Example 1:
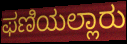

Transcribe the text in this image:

ಫಣಿಯಲ್ಲಾರು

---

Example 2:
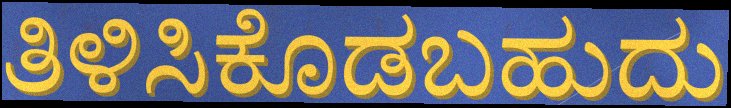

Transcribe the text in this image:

ತಿಳಿಸಿಕೊಡಬಹುದು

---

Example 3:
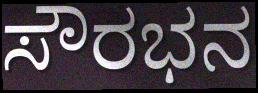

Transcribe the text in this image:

ಸೌರಭನ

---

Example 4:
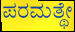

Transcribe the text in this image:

ಪರಮತ್ಥೇ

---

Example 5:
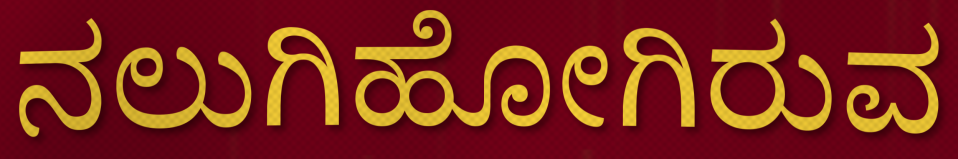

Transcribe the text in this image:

ನಲುಗಿಹೋಗಿರುವ